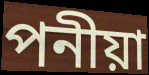
পনীয়া